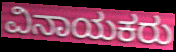
ವಿನಾಯಕರು